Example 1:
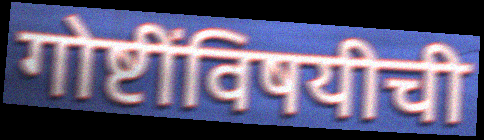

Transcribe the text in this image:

गोष्टींविषयीची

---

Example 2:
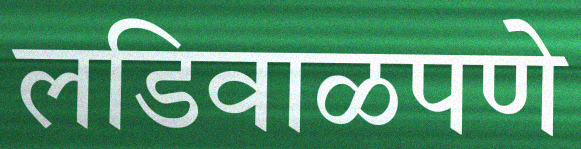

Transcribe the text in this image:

लडिवाळपणे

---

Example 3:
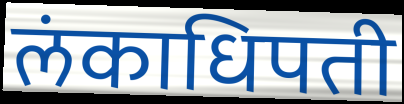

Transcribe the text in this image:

लंकाधिपती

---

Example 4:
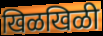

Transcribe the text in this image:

खिळखिळी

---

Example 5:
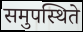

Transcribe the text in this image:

समुपस्थिते